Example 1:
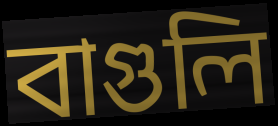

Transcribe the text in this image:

বাগুলি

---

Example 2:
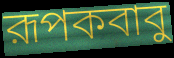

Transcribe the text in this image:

রূপকবাবু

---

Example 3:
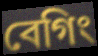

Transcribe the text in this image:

বেগিং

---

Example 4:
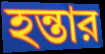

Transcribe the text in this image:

হন্তার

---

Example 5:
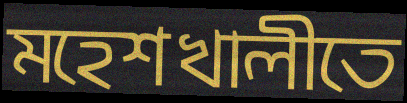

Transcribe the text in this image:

মহেশখালীতে